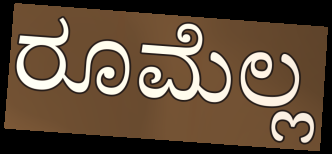
ರೂಮೆಲ್ಲ